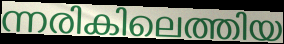
ന്നരികിലെത്തിയ